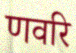
णवरि